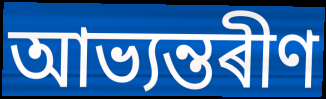
আভ্যন্তৰীণ